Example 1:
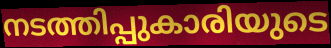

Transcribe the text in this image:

നടത്തിപ്പുകാരിയുടെ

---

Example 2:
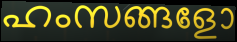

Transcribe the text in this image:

ഹംസങ്ങളോ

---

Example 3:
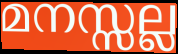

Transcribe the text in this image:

മനസ്സല്ല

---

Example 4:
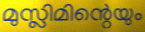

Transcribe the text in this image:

മുസ്ലിമിന്റെയും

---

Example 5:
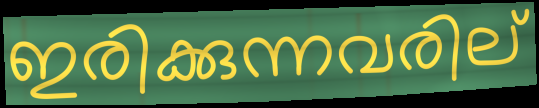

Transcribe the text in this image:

ഇരിക്കുന്നവരില്